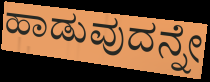
ಹಾಡುವುದನ್ನೇ